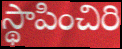
స్థాపించిరి